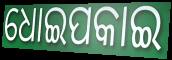
ଧୋଇପକାଇ